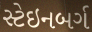
સ્ટેઇનબર્ગ